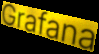
Grafana